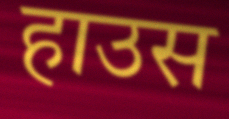
हाउस